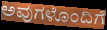
ಅವುಗಳೊಂದಿಗೆ